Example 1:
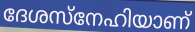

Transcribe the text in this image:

ദേശസ്നേഹിയാണ്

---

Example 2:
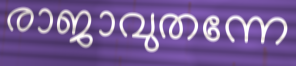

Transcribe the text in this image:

രാജാവുതന്നേ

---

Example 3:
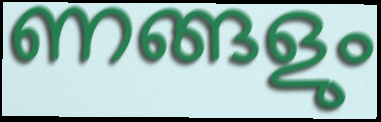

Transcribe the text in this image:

ണങ്ങളും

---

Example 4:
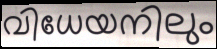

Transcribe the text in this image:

വിധേയനിലും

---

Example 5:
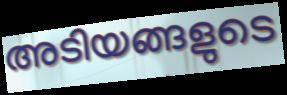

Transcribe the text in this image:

അടിയങ്ങളുടെ